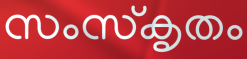
സംസ്കൃതം